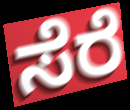
ಸೆರೆ